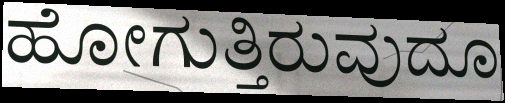
ಹೋಗುತ್ತಿರುವುದೂ